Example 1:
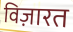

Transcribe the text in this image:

विज़ारत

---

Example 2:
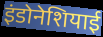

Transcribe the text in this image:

इंडोनेशियाई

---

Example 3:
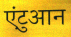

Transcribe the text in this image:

एंटुआन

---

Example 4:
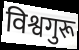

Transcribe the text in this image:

विश्वगुरू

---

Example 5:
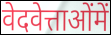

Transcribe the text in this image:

वेदवेत्ताओंमें